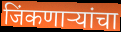
जिंकणाऱ्यांचा